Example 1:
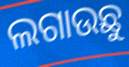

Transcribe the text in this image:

ଲଗାଉଛୁ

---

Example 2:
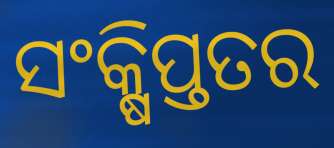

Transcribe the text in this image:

ସଂକ୍ଷିପ୍ତତର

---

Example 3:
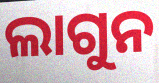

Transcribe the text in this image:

ଲାଗୁନ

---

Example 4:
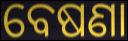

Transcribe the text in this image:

ବେଷଣା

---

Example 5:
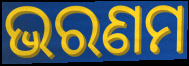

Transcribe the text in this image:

ଭରଣମ